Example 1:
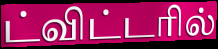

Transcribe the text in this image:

ட்விட்டரில்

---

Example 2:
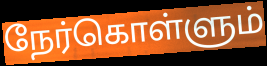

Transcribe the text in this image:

நேர்கொள்ளும்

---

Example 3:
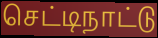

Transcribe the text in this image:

செட்டிநாட்டு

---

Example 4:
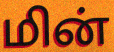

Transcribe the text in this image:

மின்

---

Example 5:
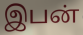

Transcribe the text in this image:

இபன்